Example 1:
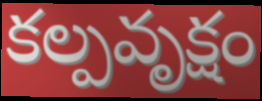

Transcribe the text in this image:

కల్పవృక్షం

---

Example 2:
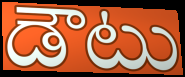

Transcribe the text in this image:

డౌటు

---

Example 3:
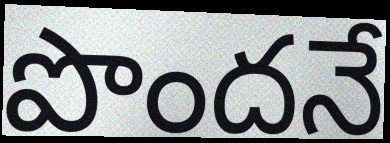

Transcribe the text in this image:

పొందనే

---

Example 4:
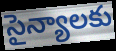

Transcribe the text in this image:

సైన్యాలకు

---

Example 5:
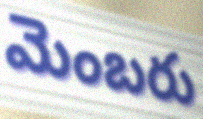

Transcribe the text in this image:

మెంబరు